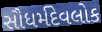
સૌધર્મદેવલોક